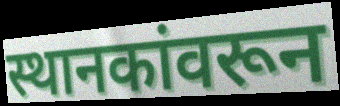
स्थानकांवरून